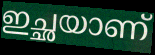
ഇച്ഛയാണ്